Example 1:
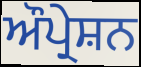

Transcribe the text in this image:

ਔਪ੍ਰੇਸ਼ਨ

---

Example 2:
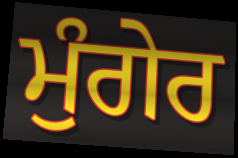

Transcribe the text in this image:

ਮੁੰਗੇਰ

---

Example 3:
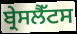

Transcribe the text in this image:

ਬ੍ਰੇਸਲੈੱਟਸ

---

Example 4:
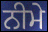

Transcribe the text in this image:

ਨੀਮੇ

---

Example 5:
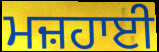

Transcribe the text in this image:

ਮਜ਼ਹਾਈ